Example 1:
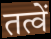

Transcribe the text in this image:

तत्वें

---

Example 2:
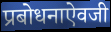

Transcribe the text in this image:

प्रबोधनाऐवजी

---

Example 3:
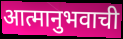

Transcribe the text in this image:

आत्मानुभवाची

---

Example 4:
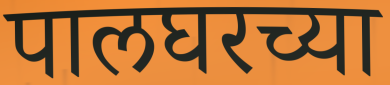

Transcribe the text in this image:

पालघरच्या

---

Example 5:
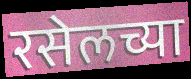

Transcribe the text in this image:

रसेलच्या